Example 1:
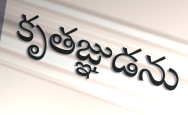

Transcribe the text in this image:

కృతజ్ఞుడను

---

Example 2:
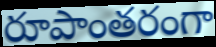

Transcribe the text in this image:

రూపాంతరంగా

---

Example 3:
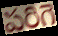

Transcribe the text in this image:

పరిగె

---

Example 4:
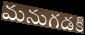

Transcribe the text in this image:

మనుగడకి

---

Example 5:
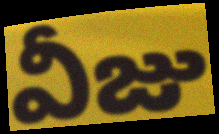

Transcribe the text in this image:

వీజు